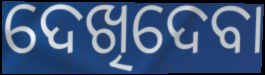
ଦେଖିଦେବା